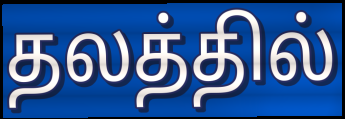
தலத்தில்